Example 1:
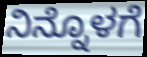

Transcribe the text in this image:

ನಿನ್ನೊಳಗೆ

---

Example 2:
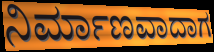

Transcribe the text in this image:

ನಿರ್ಮಾಣವಾದಾಗ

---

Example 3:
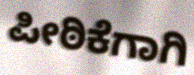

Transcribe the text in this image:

ಪೀಠಿಕೆಗಾಗಿ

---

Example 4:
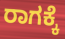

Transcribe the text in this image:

ರಾಗಕ್ಕೆ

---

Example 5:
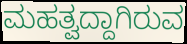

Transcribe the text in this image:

ಮಹತ್ವದ್ದಾಗಿರುವ